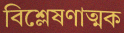
বিশ্লেষণাত্মক